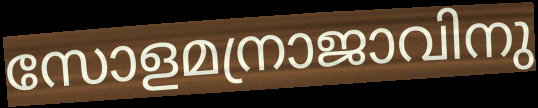
സോളമന്രാജാവിനു